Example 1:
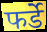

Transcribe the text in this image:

फर्डे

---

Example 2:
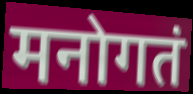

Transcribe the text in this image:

मनोगतं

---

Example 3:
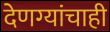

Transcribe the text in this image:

देणग्यांचाही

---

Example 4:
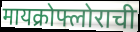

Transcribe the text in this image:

मायक्रोफ्लोराची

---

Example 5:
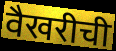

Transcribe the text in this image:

वैखरीची